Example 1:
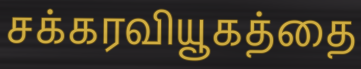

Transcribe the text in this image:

சக்கரவியூகத்தை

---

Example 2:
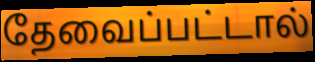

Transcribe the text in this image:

தேவைப்பட்டால்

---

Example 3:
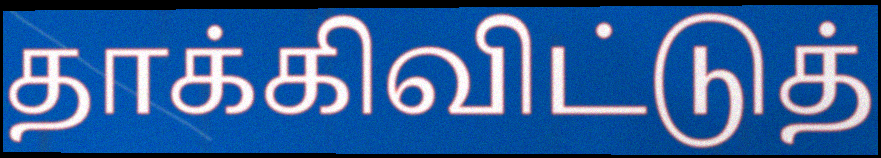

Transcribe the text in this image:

தாக்கிவிட்டுத்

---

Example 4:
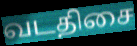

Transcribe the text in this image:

வடதிசை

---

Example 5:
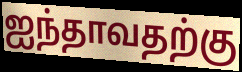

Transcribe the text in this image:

ஐந்தாவதற்கு